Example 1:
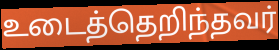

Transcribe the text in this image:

உடைத்தெறிந்தவர்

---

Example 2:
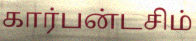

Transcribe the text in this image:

கார்பன்டசிம்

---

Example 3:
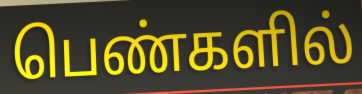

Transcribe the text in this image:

பெண்களில்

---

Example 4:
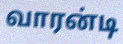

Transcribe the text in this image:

வாரன்டி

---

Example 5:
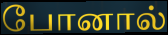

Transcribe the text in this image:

போனால்